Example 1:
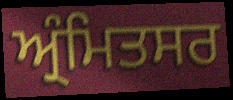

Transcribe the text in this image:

ਅ੍ਰੰਮਿਤਸਰ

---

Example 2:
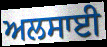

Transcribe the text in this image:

ਅਲਸਾਈ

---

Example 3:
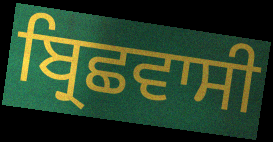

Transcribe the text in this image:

ਬ੍ਰਿਛਵਾਸੀ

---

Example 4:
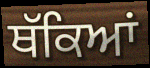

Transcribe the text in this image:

ਥੱਕਿਆਂ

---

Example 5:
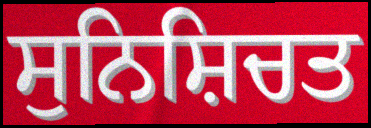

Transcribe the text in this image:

ਸੁਨਿਸ਼ਿਚਤ